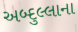
અબ્દુલ્લાના